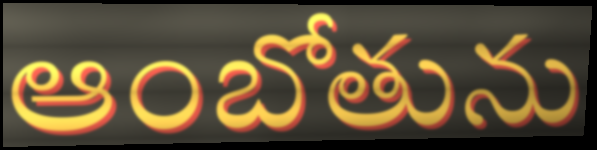
ఆంబోతును